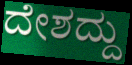
ದೇಶದ್ದು